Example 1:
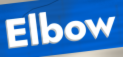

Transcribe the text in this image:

Elbow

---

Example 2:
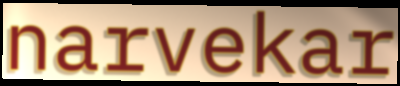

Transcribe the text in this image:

narvekar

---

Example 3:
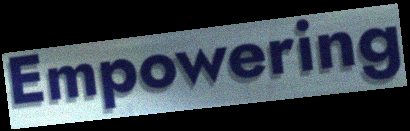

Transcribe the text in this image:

Empowering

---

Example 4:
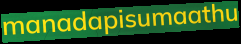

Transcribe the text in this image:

manadapisumaathu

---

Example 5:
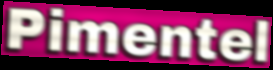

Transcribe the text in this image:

Pimentel